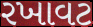
રખાવટ